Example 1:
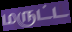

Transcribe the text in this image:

மருட்ட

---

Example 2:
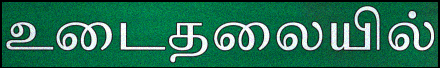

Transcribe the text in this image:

உடைதலையில்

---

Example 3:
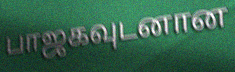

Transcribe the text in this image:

பாஜகவுடனான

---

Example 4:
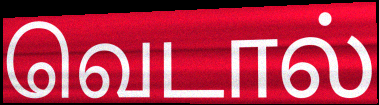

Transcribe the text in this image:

வெடால்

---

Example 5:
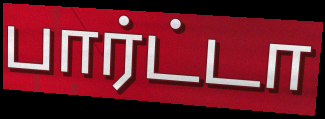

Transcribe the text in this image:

பார்ட்டா